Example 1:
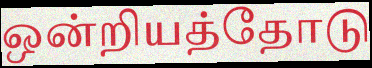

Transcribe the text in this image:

ஒன்றியத்தோடு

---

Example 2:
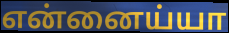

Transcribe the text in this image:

என்னைய்யா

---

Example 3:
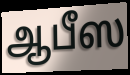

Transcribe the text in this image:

ஆபீஸ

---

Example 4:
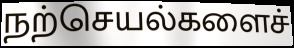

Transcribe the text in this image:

நற்செயல்களைச்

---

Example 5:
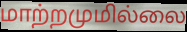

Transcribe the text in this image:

மாற்றமுமில்லை